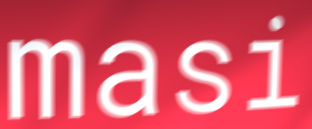
masi